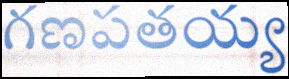
గణపతయ్య